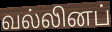
வல்லினப்